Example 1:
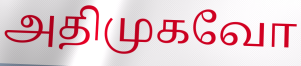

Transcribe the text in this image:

அதிமுகவோ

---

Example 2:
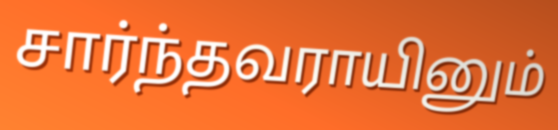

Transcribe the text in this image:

சார்ந்தவராயினும்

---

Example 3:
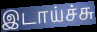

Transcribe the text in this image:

இடாய்ச்சு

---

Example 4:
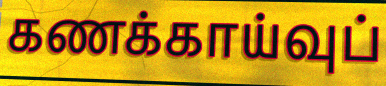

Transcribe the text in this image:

கணக்காய்வுப்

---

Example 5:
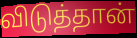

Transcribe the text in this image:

விடுத்தான்